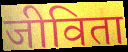
जीविता